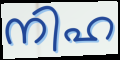
നിഹ